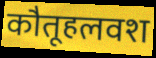
कौतूहलवश